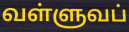
வள்ளுவப்